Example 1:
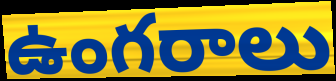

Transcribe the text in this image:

ఉంగరాలు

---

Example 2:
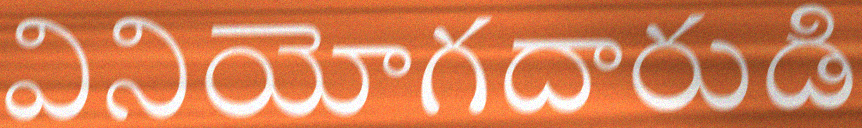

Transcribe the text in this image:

వినియోగదారుడి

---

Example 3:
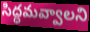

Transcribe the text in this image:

సిద్ధమవ్వాలని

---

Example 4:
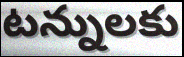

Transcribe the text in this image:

టన్నులకు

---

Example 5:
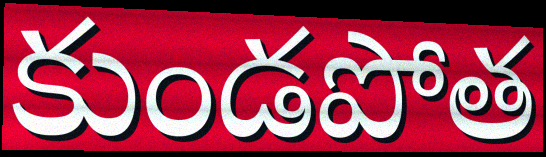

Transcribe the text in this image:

కుండపోత